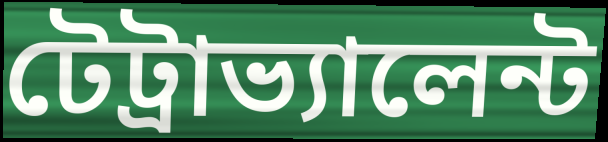
টেট্রাভ্যালেন্ট